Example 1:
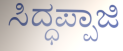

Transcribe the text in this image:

ಸಿದ್ಧಪ್ಪಾಜಿ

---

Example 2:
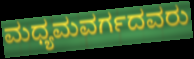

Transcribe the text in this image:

ಮಧ್ಯಮವರ್ಗದವರು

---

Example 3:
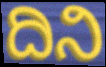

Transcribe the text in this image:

ದಿನಿ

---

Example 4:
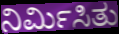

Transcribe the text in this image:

ನಿರ್ಮಿಸಿತು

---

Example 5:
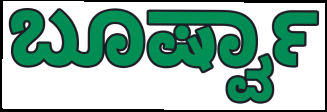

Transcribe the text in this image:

ಬೂರ್ಷ್ವಾ